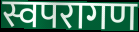
स्वपरागण